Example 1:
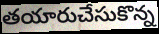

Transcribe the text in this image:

తయారుచేసుకొన్న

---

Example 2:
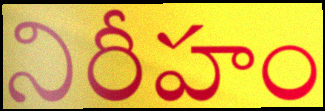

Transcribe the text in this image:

నిరీహం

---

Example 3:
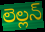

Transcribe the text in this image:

లెల్లన్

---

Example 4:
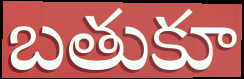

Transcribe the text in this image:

బతుకూ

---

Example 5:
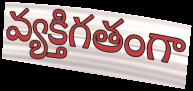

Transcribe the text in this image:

వ్యక్తిగతంగా